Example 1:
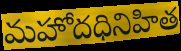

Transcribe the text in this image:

మహోదధినిహిత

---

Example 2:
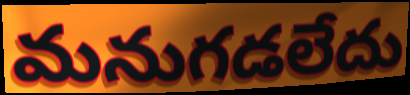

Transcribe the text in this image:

మనుగడలేదు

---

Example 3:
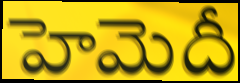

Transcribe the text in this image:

హెమెదీ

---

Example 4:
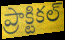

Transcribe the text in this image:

ప్రాక్టికల్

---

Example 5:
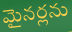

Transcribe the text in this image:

మైనర్లను